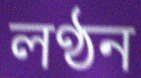
লণ্ঠন